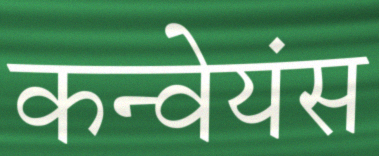
कन्वेयंस